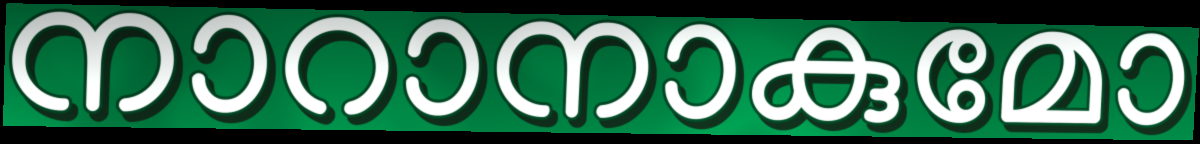
നാറാനാകുമോ